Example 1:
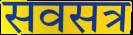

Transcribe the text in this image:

सवसत्र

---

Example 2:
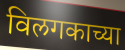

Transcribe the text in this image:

विलगकाच्या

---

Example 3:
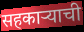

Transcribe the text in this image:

सहकाऱ्याची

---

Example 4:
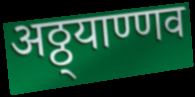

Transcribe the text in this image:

अठ्ठ्याण्णव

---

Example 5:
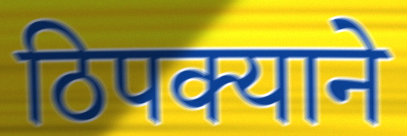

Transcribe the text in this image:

ठिपक्याने